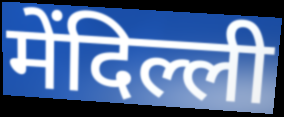
मेंदिल्ली